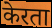
केरता